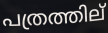
പത്രത്തില്